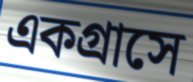
একগ্রাসে